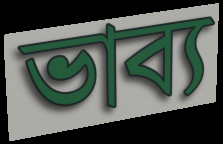
ভাব্য